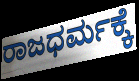
ರಾಜಧರ್ಮಕ್ಕೆ